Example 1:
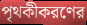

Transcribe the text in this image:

পৃথকীকরণের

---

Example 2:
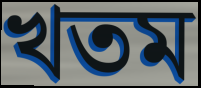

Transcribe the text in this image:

খতম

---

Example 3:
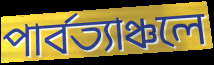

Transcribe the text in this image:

পার্বত্যাঞ্চলে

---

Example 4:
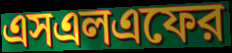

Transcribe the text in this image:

এসএলএফের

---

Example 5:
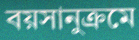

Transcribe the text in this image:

বয়সানুক্রমে